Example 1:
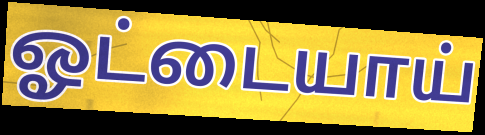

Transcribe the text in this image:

ஓட்டையாய்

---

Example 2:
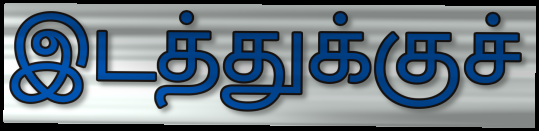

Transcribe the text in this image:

இடத்துக்குச்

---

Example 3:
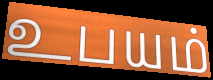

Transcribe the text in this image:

உபயம்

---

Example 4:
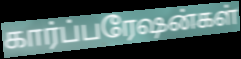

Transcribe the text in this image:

கார்ப்பரேஷன்கள்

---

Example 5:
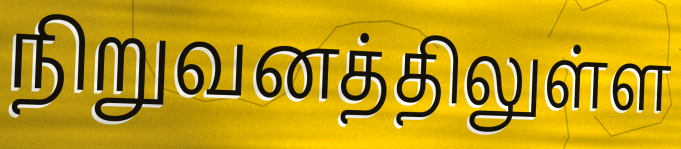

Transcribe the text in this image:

நிறுவனத்திலுள்ள